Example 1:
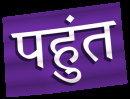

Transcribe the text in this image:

पहुंत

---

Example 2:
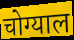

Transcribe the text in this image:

चोग्याल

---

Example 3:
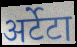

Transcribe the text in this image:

अर्टेटा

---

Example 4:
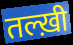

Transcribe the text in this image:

तल्ख़ी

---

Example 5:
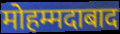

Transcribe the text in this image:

मोहम्मदाबाद